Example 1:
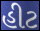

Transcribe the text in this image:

હીટ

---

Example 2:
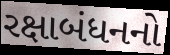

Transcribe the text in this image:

રક્ષાબંધનનો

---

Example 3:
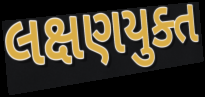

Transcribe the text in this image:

લક્ષણયુક્ત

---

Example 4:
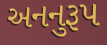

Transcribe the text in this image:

અનનુરૂપ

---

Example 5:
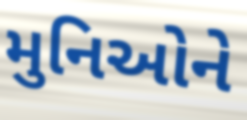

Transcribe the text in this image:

મુનિઓને